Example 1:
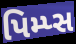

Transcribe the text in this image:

પિમ્પ્સ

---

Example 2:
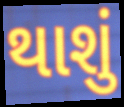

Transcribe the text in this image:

થાશું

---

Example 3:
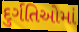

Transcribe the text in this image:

દુર્ગતિઓમાં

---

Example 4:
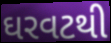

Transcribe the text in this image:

ઘરવટથી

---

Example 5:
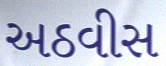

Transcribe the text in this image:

અઠવીસ